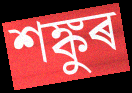
শঙ্কুৰ